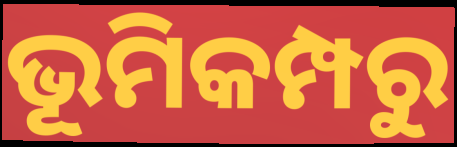
ଭୂମିକମ୍ପରୁ